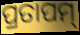
ପ୍ରତାପମ୍